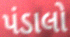
પંડાલો